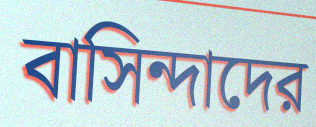
বাসিন্দাদের